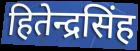
हितेन्द्रसिंह